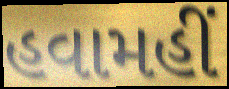
હવામહીં